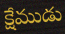
క్షేముడు